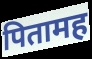
पितामह